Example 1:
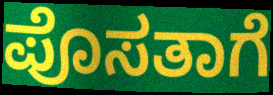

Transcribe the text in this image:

ಪೊಸತಾಗೆ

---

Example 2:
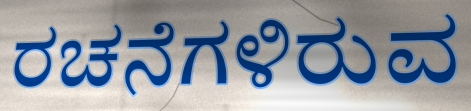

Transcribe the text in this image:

ರಚನೆಗಳಿರುವ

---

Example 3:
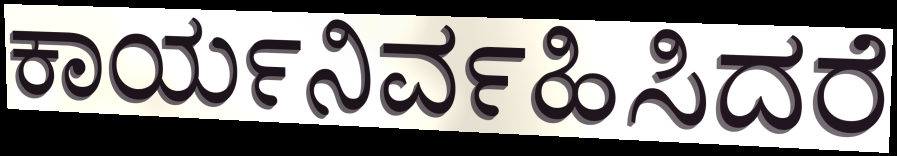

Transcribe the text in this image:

ಕಾರ್ಯನಿರ್ವಹಿಸಿದರೆ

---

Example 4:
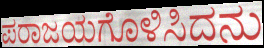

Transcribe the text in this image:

ಪರಾಜಯಗೊಳಿಸಿದನು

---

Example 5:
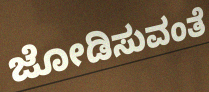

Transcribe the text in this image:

ಜೋಡಿಸುವಂತೆ